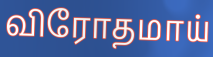
விரோதமாய்